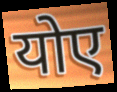
योए